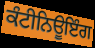
ਕੰਟੀਨਿਊਇੰਗ